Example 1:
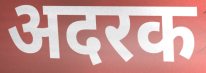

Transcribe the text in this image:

अदरक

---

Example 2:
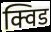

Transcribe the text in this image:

क्विड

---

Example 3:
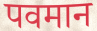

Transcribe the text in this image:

पवमान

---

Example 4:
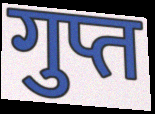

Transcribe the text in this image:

गुप्त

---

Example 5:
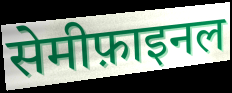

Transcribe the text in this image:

सेमीफ़ाइनल